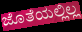
ಜೊತೆಯಲ್ಲಿಲ್ಲ